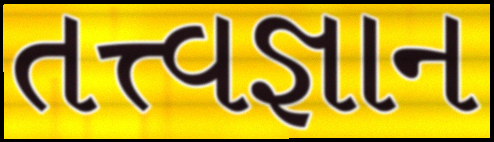
તત્ત્વજ્ઞાન